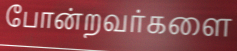
போன்றவர்களை